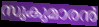
സുകുമാരൻ